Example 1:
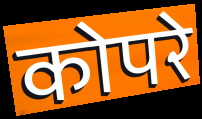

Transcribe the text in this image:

कोपरे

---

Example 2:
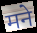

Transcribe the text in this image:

मने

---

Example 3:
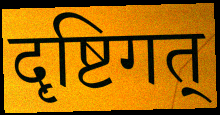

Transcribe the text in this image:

दृष्टिगत्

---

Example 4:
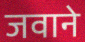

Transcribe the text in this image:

जवाने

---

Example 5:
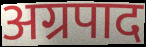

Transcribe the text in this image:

अग्रपाद